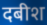
दबीश